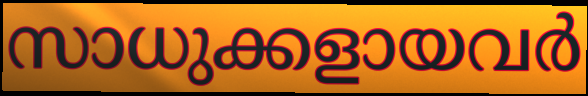
സാധുക്കളായവർ